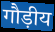
गौड़ीय